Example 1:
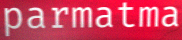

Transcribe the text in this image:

parmatma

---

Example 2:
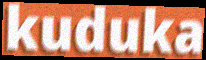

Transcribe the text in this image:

kuduka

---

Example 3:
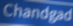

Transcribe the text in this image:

Chandgad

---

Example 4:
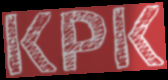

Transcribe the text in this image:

KPK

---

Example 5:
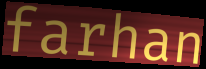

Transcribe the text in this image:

farhan